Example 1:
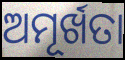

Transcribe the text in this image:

ଅମୂର୍ଖତା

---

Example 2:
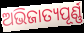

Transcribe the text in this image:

ଅଭିଜାତ୍ୟପୂର୍ଣ୍ଣ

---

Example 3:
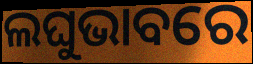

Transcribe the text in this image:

ଲଘୁଭାବରେ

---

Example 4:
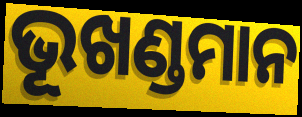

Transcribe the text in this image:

ଭୂଖଣ୍ଡମାନ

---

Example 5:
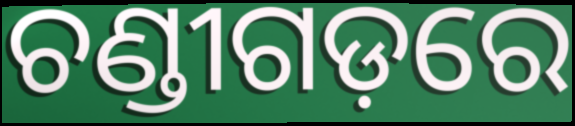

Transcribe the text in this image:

ଚଣ୍ଡୀଗଡ଼ରେ